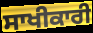
ਸਾਖੀਕਾਰੀ